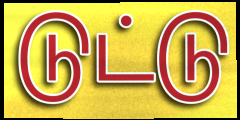
டுட்டு